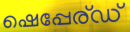
ഷെപ്പേര്ഡ്